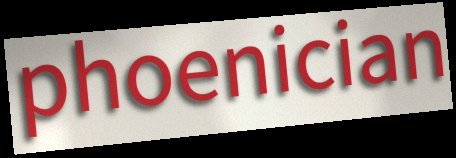
phoenician